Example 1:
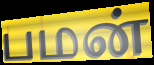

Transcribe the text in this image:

பமன்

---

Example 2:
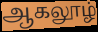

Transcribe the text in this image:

ஆகலூழ்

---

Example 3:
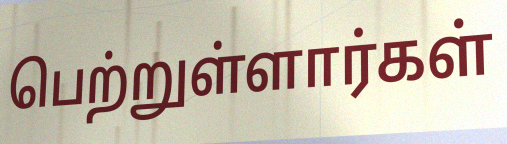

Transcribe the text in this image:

பெற்றுள்ளார்கள்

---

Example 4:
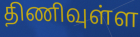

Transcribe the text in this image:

திணிவுள்ள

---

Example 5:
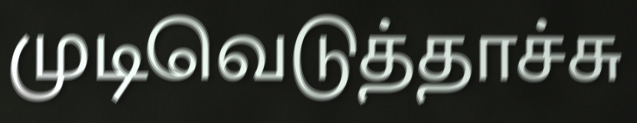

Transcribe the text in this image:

முடிவெடுத்தாச்சு